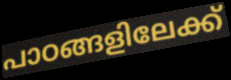
പാഠങ്ങളിലേക്ക്